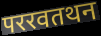
पररवतथन